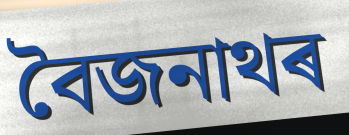
বৈজনাথৰ